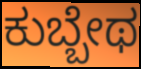
ಕುಬ್ಬೇಥ